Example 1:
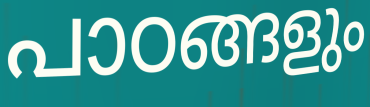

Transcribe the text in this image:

പാഠങ്ങളും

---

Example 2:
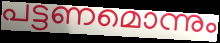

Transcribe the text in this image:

പട്ടണമൊന്നും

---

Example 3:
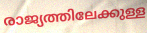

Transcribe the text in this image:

രാജ്യത്തിലേക്കുള്ള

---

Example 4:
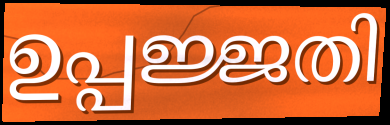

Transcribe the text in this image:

ഉപ്പജ്ജതി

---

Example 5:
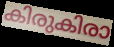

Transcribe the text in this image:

കിരുകിരാ